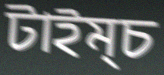
টাইম্‌চ